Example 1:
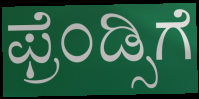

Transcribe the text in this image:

ಫ್ರೆಂಡ್ಸಿಗೆ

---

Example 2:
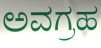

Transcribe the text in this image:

ಅವಗ್ರಹ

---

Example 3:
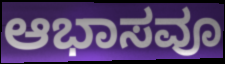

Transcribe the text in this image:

ಆಭಾಸವೂ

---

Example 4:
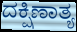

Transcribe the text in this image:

ದಕ್ಷಿಣಾತ್ಯ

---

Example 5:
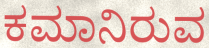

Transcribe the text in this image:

ಕಮಾನಿರುವ